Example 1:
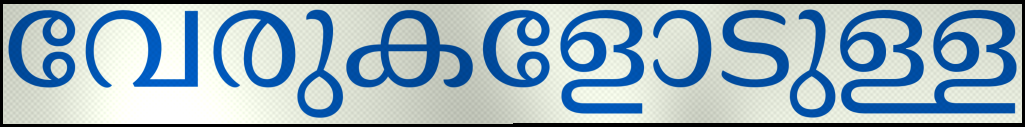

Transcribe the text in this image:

വേരുകളോടുള്ള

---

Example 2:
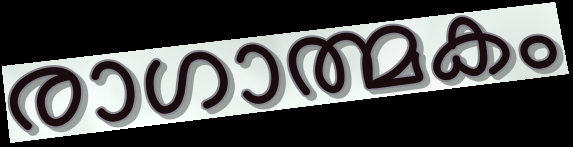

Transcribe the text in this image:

രാഗാത്മകം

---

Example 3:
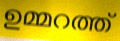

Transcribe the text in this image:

ഉമ്മറത്ത്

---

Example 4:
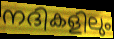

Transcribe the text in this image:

നദികളിലും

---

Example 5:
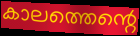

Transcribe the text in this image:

കാലത്തെന്റെ